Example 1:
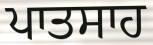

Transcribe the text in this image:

ਪਾਤਸਾਹ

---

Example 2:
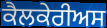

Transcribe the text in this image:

ਕੈਲਕੇਰੀਅਸ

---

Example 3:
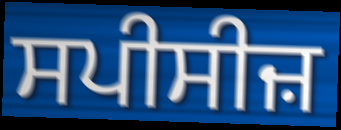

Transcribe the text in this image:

ਸਪੀਸੀਜ਼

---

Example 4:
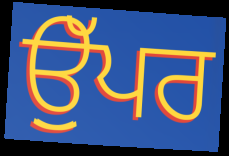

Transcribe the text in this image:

ਉੁੱਪਰ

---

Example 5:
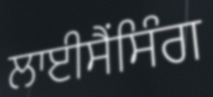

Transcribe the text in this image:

ਲਾਈਸੈਂਸਿੰਗ